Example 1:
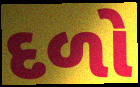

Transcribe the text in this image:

દળો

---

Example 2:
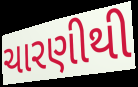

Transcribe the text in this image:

ચારણીથી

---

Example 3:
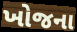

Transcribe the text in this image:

ખોજના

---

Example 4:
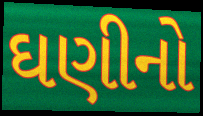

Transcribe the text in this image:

ઘણીનો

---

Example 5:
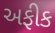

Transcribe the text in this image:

અફીક